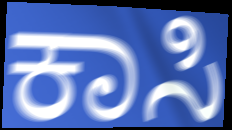
ಕಾಸಿ